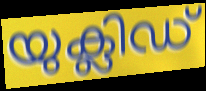
യുക്ലിഡ്